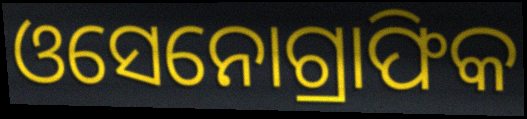
ଓସେନୋଗ୍ରାଫିକ